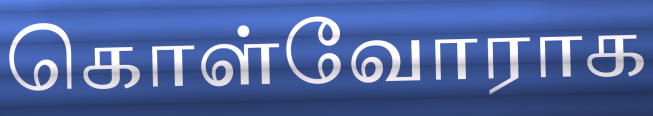
கொள்வோராக